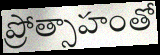
ప్రోత్సాహంతో